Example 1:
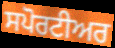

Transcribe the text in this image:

ਸਪੋਰਟੀਅਰ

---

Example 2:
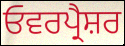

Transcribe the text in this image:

ਓਵਰਪ੍ਰੈਸ਼ਰ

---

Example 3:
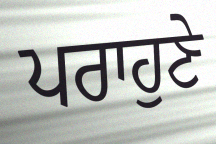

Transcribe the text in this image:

ਪਰਾਹੁਣੇ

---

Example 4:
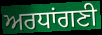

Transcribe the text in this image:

ਅਰਧਾਂਗਣੀ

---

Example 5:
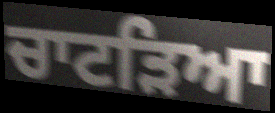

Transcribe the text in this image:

ਚਾਟੜਿਆ